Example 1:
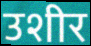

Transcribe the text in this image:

उशीर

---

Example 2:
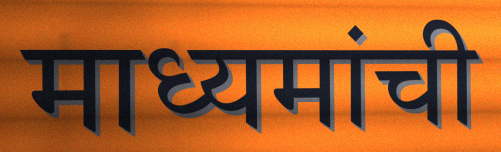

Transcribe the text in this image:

माध्यमांची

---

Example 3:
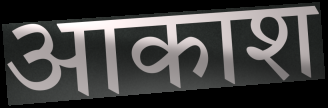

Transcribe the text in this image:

आकाश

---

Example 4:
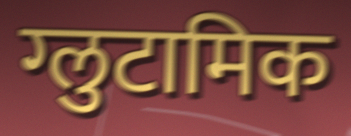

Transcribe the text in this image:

ग्लुटामिक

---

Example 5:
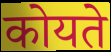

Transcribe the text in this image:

कोयते